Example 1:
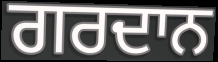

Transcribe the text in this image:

ਗਰਦਾਨ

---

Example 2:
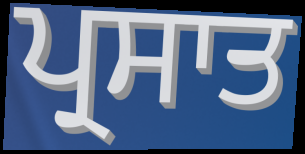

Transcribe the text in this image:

ਪ੍ਰਸਾਤ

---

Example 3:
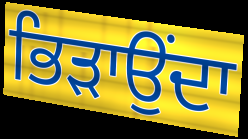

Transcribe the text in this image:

ਭਿੜਾਉਂਦਾ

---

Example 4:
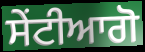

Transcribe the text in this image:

ਸੇਂਟੀਆਗੋ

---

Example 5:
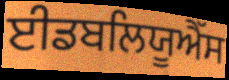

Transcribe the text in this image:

ਈਡਬਲਿਯੂਐੱਸ